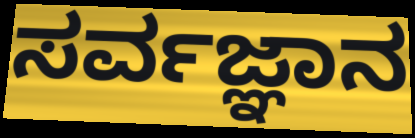
ಸರ್ವಜ್ಞಾನ